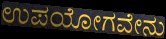
ಉಪಯೋಗವೇನು